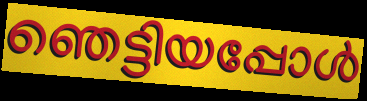
ഞെട്ടിയപ്പോൾ